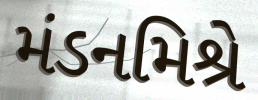
મંડનમિશ્રે